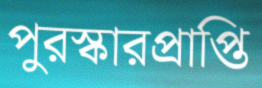
পুরস্কারপ্রাপ্তি